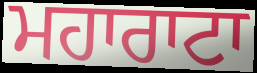
ਮਹਾਰਾਟਾ